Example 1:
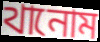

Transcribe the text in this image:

থানোম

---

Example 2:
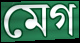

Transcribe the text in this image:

মেগ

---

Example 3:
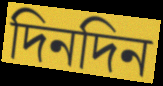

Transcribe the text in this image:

দিনদিন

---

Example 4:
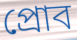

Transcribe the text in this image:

প্রোব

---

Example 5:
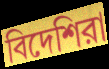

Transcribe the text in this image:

বিদেশিরা